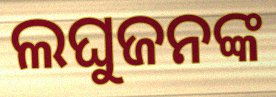
ଲଘୁଜନଙ୍କ